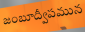
జంబూద్వీపమున